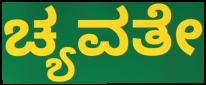
ಚ್ಯವತೇ